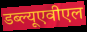
डब्ल्यूएवीएल